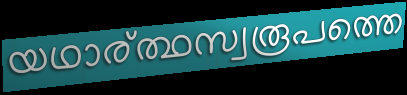
യഥാര്ത്ഥസ്വരൂപത്തെ